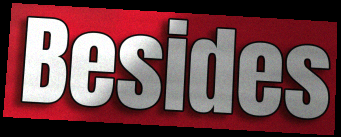
Besides